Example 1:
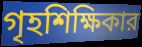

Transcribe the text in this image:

গৃহশিক্ষিকার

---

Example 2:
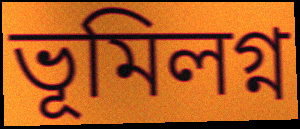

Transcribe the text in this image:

ভূমিলগ্ন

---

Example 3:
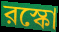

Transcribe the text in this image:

রস্কো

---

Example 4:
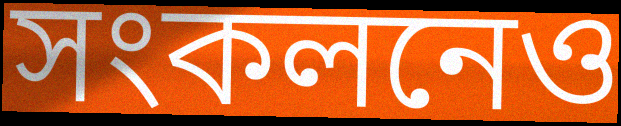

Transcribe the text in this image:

সংকলনেও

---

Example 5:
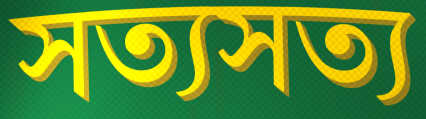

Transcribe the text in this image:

সত্যসত্য